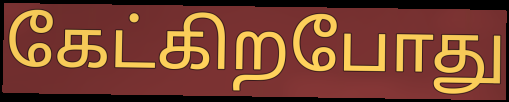
கேட்கிறபோது